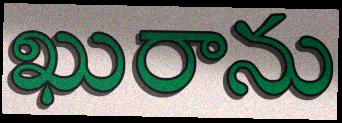
ఖురాను